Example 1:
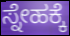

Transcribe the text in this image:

ಸ್ನೇಹಕ್ಕೆ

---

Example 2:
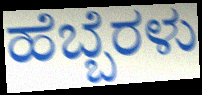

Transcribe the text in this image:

ಹೆಬ್ಬೆರಳು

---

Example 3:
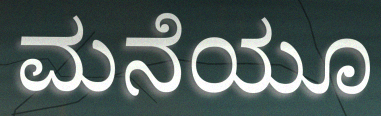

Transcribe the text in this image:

ಮನೆಯೂ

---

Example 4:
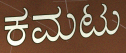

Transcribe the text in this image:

ಕಮಟು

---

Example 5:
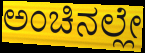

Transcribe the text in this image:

ಅಂಚಿನಲ್ಲೇ